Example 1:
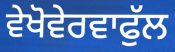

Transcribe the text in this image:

ਵੇਖੋਵੇਰਵਾਫੁੱਲ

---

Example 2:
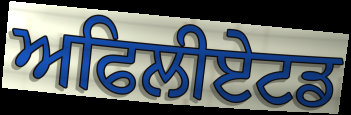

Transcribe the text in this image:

ਅਫਿਲੀਏਟਡ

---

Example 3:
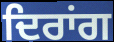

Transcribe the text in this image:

ਦਿਰਾਂਗ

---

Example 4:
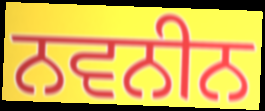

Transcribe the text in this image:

ਨਵਨੀਨ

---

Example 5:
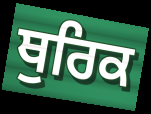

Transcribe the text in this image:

ਥੁਰਿਕ